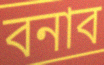
বনাব